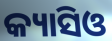
କ୍ୟାସିଓ